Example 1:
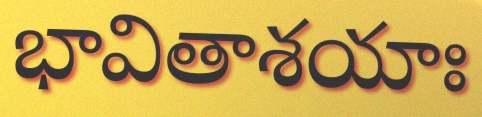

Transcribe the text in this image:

భావితాశయాః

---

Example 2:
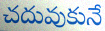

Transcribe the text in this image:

చదువుకునే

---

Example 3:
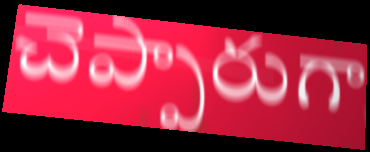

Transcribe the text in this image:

చెప్పారుగా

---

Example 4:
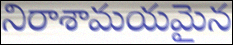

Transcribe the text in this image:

నిరాశామయమైన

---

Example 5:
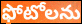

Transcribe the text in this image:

ఫోటోలను